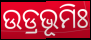
ଉଡ୍ରଭୂମିଃ